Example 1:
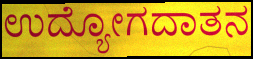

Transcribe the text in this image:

ಉದ್ಯೋಗದಾತನ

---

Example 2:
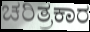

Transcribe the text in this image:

ಚರಿತ್ರಕಾರ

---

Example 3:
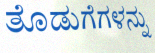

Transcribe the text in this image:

ತೊಡುಗೆಗಳನ್ನು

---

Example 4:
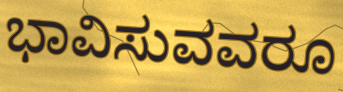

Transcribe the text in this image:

ಭಾವಿಸುವವರೂ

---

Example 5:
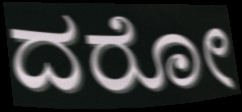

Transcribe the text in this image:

ದರೋ